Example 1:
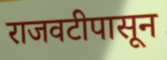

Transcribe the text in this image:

राजवटीपासून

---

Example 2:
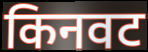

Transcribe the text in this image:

किनवट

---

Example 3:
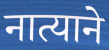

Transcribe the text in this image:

नात्याने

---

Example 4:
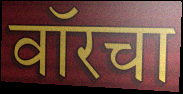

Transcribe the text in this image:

वॉरचा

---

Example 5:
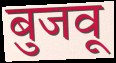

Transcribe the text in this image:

बुजवू